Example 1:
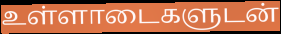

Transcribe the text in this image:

உள்ளாடைகளுடன்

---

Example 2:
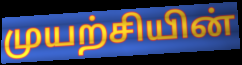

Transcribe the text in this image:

முயற்சியின்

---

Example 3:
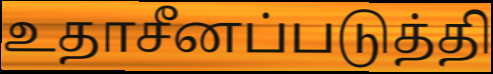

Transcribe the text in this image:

உதாசீனப்படுத்தி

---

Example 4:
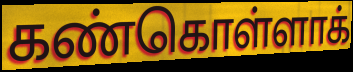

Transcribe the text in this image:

கண்கொள்ளாக்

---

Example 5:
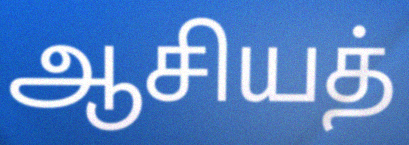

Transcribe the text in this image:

ஆசியத்